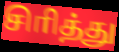
சிரித்து